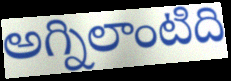
అగ్నిలాంటిది